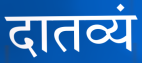
दातव्यं